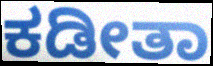
ಕಡೀತಾ